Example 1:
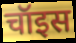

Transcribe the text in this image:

चॉइस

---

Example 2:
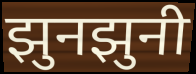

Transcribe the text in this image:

झुनझुनी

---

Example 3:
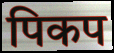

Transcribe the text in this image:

पिकप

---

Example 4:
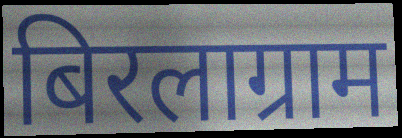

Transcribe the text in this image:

बिरलाग्राम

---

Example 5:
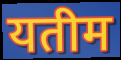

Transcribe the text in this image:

यतीम